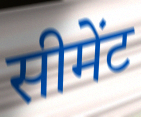
सीमेंट